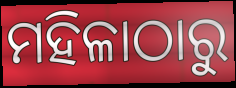
ମହିଳାଠାରୁ